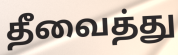
தீவைத்து